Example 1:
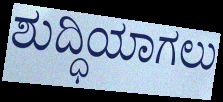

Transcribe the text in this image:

ಶುದ್ಧಿಯಾಗಲು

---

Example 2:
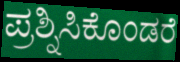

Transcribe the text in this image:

ಪ್ರಶ್ನಿಸಿಕೊಂಡರೆ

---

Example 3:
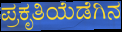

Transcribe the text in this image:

ಪ್ರಕೃತಿಯೆಡೆಗಿನ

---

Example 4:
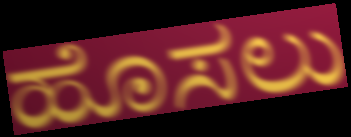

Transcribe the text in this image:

ಹೊಸಲು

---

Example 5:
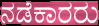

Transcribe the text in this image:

ನಡೆಕಾರರು